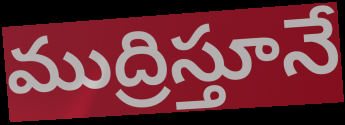
ముద్రిస్తూనే